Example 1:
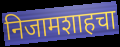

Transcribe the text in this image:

निजामशाहचा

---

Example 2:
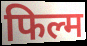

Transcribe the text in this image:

फिल्म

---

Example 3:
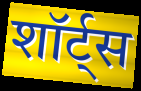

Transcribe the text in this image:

शॉर्ट्स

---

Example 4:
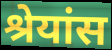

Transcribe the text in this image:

श्रेयांस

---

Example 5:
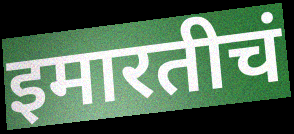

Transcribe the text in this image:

इमारतीचं